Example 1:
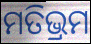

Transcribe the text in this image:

ମତିଭ୍ରମ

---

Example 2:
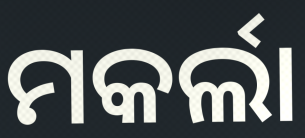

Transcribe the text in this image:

ମକର୍ଲା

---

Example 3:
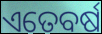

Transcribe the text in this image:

ଏତେବର୍ଷ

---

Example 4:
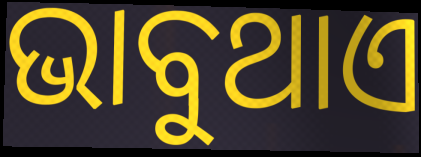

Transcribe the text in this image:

ଭାବୁଥାଏ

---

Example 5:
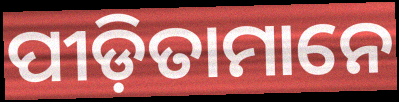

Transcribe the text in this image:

ପୀଡ଼ିତାମାନେ